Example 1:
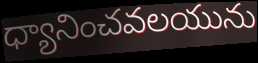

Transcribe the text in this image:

ధ్యానించవలయును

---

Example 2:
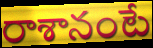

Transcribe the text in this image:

రాశానంటే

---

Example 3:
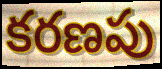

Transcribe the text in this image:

కరణపు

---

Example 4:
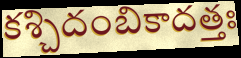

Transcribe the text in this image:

కశ్చిదంబికాదత్తః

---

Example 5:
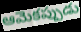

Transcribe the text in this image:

ఆమెకప్పుడు